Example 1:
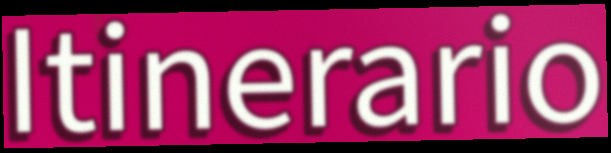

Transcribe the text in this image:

Itinerario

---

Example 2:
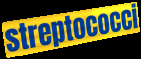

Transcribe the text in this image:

streptococci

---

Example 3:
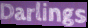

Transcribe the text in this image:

Darlings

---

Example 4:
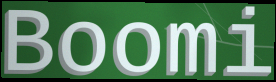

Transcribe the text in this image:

Boomi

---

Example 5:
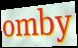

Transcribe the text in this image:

omby